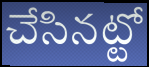
చేసినట్టో